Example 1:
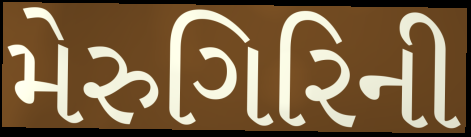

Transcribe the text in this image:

મેરુગિરિની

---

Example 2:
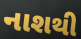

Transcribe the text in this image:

નાશથી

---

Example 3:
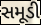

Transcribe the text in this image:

સમૂડી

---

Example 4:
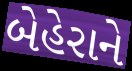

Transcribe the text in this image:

બેહેરાને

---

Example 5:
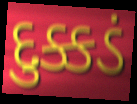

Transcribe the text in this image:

દુક્કડં